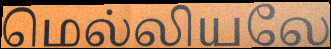
மெல்லியலே